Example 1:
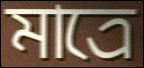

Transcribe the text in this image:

মাত্ৰে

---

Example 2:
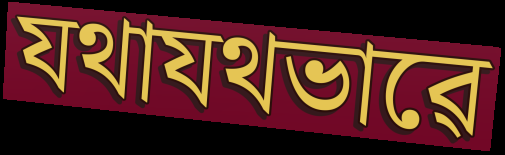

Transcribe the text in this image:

যথাযথভাৱে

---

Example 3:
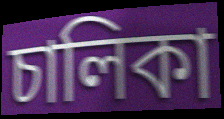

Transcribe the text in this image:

চালিকা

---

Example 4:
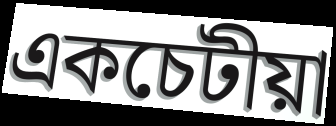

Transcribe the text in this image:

একচেটীয়া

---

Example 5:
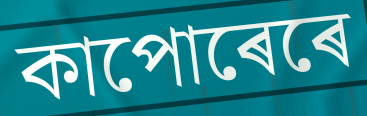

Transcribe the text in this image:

কাপোৰেৰে